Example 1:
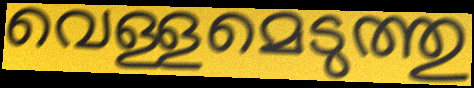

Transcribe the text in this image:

വെള്ളമെടുത്തു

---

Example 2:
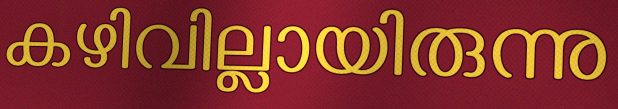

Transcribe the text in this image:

കഴിവില്ലായിരുന്നു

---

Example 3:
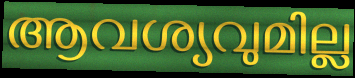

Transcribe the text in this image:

ആവശ്യവുമില്ല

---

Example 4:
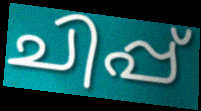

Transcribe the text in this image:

ചിപ്പ്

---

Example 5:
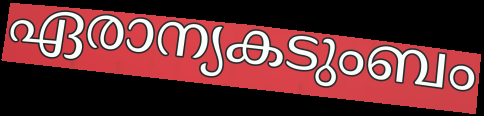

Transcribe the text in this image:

ഏരാന്യകടുംബം